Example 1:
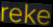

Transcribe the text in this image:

reke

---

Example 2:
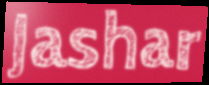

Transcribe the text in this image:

Jashar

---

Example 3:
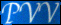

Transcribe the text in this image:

PVV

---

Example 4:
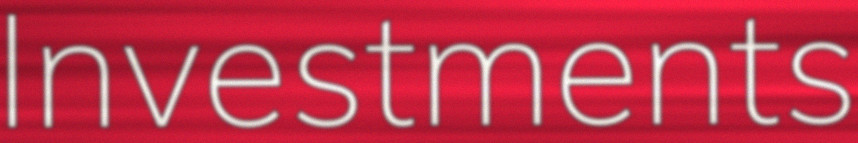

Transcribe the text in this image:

Investments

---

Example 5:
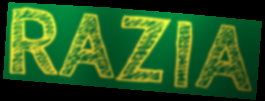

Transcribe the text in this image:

RAZIA